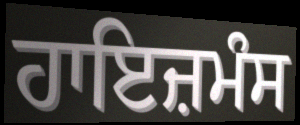
ਹਾਇਜ਼ਮੰਸ